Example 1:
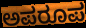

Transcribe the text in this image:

ಅಪರೂಪ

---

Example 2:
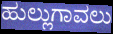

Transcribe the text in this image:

ಹುಲ್ಲುಗಾವಲು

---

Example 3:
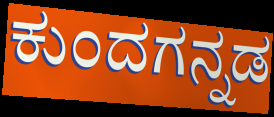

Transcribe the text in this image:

ಕುಂದಗನ್ನಡ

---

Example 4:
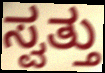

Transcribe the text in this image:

ಸ್ವತ್ತು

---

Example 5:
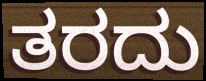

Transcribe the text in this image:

ತರದು